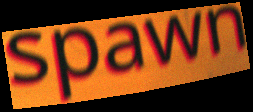
spawn